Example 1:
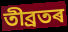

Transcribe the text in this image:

তীব্ৰতৰ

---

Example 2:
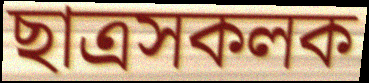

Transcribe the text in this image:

ছাত্ৰসকলক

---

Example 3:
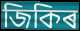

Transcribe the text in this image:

জিকিৰ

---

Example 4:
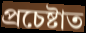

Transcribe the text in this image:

প্ৰচেষ্টাত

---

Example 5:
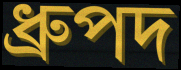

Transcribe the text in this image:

ধ্ৰুপদ